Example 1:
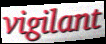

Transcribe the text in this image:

vigilant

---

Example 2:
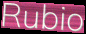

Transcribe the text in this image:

Rubio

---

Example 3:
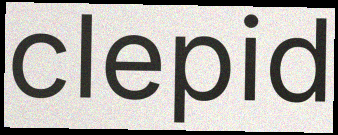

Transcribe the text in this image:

clepid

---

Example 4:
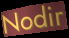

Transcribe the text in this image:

Nodir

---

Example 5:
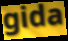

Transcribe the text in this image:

gida